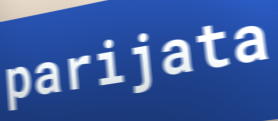
parijata